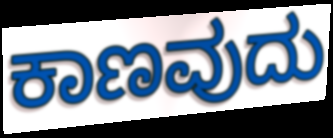
ಕಾಣವುದು